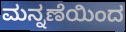
ಮನ್ನಣೆಯಿಂದ